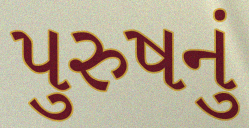
પુરુષનું